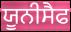
ਯੂਨੀਸੈਫ